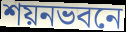
শয়নভবনে